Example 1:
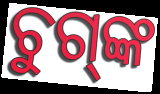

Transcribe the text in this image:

ଚୁଗ୍‌ଙ୍କ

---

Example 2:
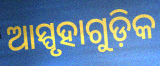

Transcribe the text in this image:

ଆସ୍ପୃହାଗୁଡ଼ିକ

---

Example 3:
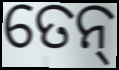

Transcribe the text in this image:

ତେନ୍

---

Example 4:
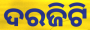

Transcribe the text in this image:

ଦରଜିଟି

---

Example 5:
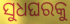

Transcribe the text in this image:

ସୁଧଘରକୁ